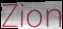
Zion